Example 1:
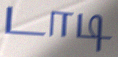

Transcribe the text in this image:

டாடி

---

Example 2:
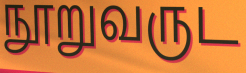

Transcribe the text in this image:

நூறுவருட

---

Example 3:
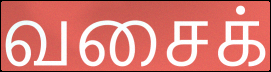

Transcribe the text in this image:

வசைக்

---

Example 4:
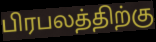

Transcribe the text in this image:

பிரபலத்திற்கு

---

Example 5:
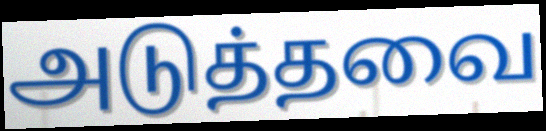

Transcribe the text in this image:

அடுத்தவை